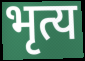
भृत्य